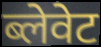
ब्लेवेट